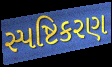
સ્પષ્ટિકરણ